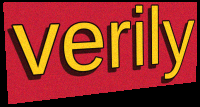
verily